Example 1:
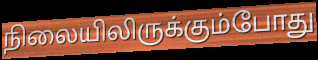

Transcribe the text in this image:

நிலையிலிருக்கும்போது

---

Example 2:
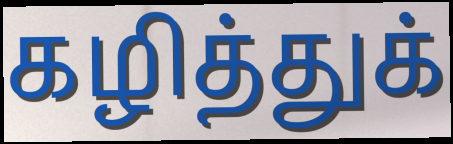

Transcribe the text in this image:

கழித்துக்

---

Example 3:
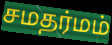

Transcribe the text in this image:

சமதர்மம்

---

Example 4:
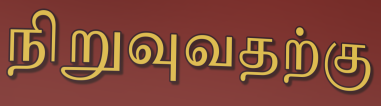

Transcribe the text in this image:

நிறுவுவதற்கு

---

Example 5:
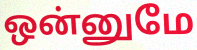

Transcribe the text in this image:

ஒன்னுமே